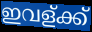
ഇവള്ക്ക്